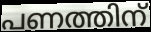
പണത്തിന്